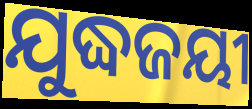
ଯୁଦ୍ଧଜୟୀ